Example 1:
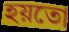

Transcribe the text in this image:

হয়তো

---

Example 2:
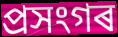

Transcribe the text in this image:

প্ৰসংগৰ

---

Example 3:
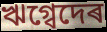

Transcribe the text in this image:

ঋগ্বেদেৰ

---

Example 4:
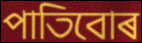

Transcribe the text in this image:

পাতিবোৰ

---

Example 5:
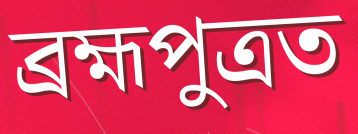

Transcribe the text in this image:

ব্ৰহ্মপুত্ৰত